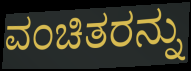
ವಂಚಿತರನ್ನು